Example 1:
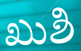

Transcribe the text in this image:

ಖುಶಿ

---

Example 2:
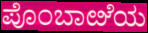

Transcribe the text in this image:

ಪೊಂಬಾೞೆಯ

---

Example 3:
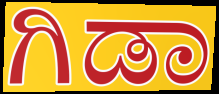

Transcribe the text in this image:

ಗಿಡಾ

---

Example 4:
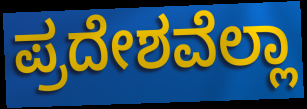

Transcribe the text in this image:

ಪ್ರದೇಶವೆಲ್ಲಾ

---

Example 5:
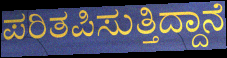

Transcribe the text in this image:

ಪರಿತಪಿಸುತ್ತಿದ್ದಾನೆ